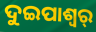
ଦୁଇପାଶ୍ୱର୍